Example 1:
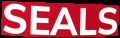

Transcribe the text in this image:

SEALS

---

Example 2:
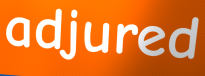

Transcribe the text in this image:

adjured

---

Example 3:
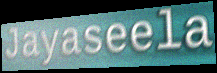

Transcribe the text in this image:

Jayaseela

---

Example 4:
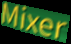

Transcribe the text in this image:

Mixer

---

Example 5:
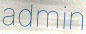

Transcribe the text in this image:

admin